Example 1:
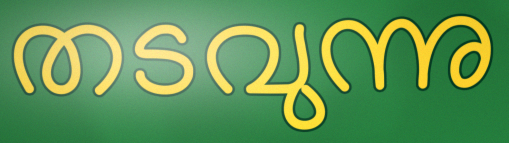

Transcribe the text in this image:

തടവുന്നു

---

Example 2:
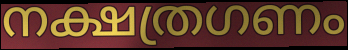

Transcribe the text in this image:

നക്ഷത്രഗണം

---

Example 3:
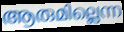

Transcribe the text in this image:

ആരുമില്ലെന്ന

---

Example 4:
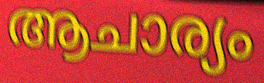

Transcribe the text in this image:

ആചാര്യം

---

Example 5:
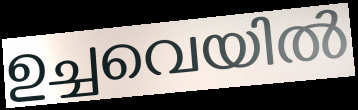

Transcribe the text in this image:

ഉച്ചവെയിൽ